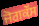
ਜੋਗਕੌਂਸ